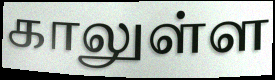
காலுள்ள